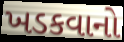
ખડકવાનો